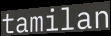
tamilan